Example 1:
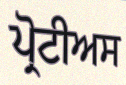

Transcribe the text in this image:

ਪ੍ਰੋਟੀਅਸ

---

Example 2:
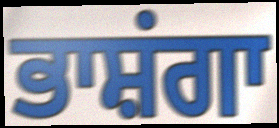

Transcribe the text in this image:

ਭਾਸ਼ਂਗਾ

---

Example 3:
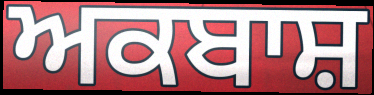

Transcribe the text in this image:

ਅਕਬਾਸ਼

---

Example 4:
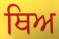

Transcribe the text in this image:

ਥਿਅ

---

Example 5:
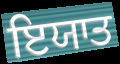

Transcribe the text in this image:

ਇਯਾਤ